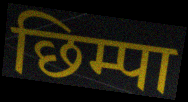
छिम्पा